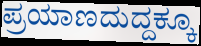
ಪ್ರಯಾಣದುದ್ದಕ್ಕೂ